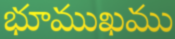
భూముఖము